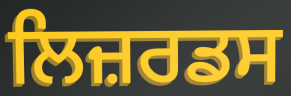
ਲਿਜ਼ਰਡਸ